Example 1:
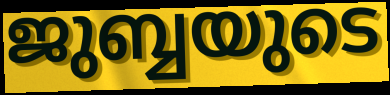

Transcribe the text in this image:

ജുബ്ബയുടെ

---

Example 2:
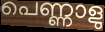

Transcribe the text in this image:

പെണ്ണാളു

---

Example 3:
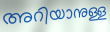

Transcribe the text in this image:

അറിയാനുള്ള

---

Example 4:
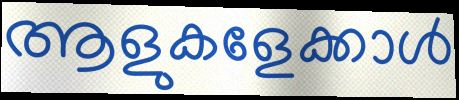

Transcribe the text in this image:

ആളുകളേക്കാൾ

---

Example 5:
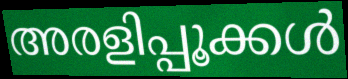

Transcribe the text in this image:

അരളിപ്പൂക്കൾ